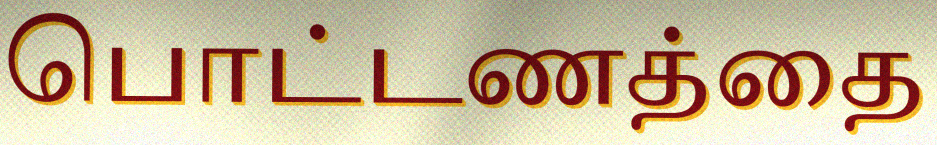
பொட்டணத்தை